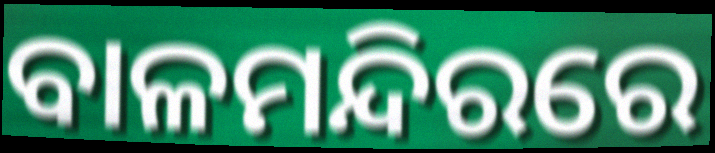
ବାଳମନ୍ଦିରରେ